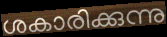
ശകാരിക്കുന്നു